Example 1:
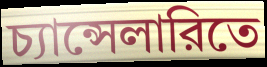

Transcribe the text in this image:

চ্যান্সেলারিতে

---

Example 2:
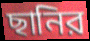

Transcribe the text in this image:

ছানির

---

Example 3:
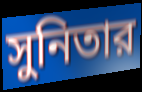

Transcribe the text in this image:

সুনিতার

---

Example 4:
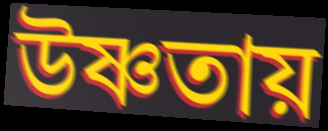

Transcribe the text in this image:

উষ্ণতায়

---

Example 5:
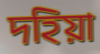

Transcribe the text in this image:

দহিয়া